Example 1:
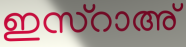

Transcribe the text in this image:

ഇസ്റാഅ്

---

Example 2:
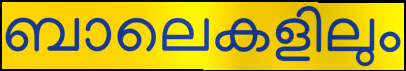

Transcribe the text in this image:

ബാലെകളിലും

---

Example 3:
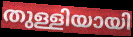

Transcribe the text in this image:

തുള്ളിയായി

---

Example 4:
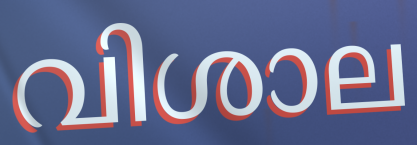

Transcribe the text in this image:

വിശാല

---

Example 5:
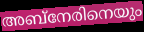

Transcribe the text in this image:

അബ്നേരിനെയും